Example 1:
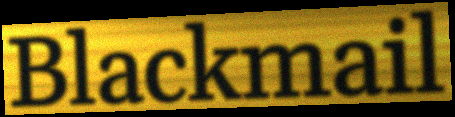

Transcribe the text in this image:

Blackmail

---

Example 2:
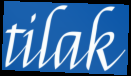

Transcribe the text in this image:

tilak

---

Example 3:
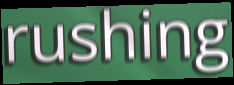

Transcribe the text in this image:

rushing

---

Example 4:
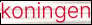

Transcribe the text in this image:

koningen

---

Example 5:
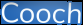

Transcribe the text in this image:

Cooch